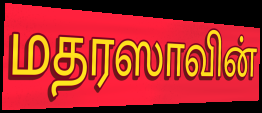
மதரஸாவின்